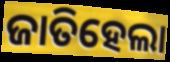
ଜାତିହେଲା